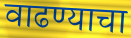
वाढण्याचा